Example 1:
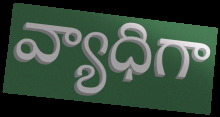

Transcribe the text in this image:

వ్యాధిగా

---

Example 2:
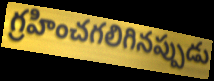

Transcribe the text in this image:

గ్రహించగలిగినప్పుడు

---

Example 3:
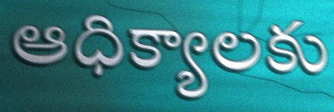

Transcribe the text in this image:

ఆధిక్యాలకు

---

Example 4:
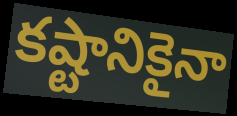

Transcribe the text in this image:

కష్టానికైనా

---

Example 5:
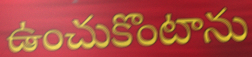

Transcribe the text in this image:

ఉంచుకొంటాను